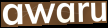
awaru